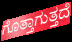
ಗೊತ್ತಾಗುತ್ತದೆ